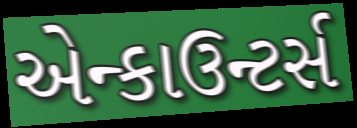
એન્કાઉન્ટર્સ